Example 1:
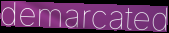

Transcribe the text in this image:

demarcated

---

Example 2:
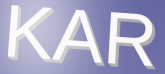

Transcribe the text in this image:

KAR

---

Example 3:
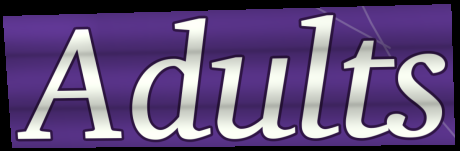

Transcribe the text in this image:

Adults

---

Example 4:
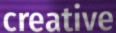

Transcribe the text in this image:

creative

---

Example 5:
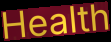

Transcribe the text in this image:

Health